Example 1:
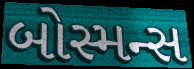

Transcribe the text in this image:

બોસ્મન્સ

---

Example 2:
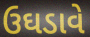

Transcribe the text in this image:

ઉઘડાવે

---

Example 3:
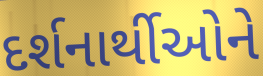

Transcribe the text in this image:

દર્શનાર્થીઓને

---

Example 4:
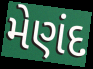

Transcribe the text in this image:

મેણંદ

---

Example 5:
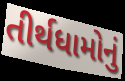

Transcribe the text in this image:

તીર્થધામોનું